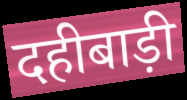
दहीबाड़ी